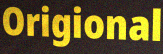
Origional